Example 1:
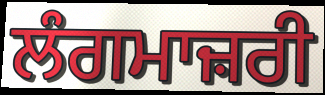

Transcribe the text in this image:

ਲੰਗਮਾਜ਼ਰੀ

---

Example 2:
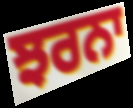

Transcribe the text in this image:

ਝਰਨਾ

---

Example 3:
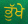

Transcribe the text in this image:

ਭੁੱਖੇ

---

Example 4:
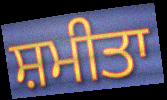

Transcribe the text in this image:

ਸ਼ਮੀਤਾ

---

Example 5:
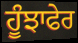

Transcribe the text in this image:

ਹੂੰਝਾਫੇਰ